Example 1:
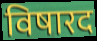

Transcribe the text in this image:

विषारद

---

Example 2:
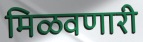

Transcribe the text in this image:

मिळवणारी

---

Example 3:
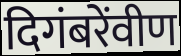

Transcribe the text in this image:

दिगंबरेंवीण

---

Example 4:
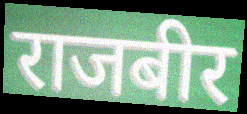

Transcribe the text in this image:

राजबीर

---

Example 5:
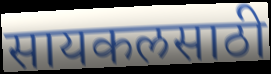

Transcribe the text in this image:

सायकलसाठी